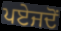
ਪਏਜਦੋਂ